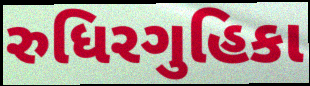
રુધિરગુહિકા